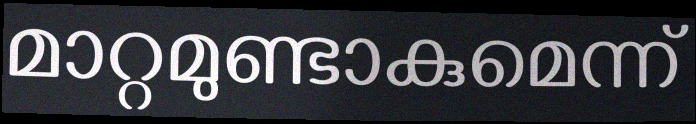
മാറ്റമുണ്ടാകുമെന്ന്